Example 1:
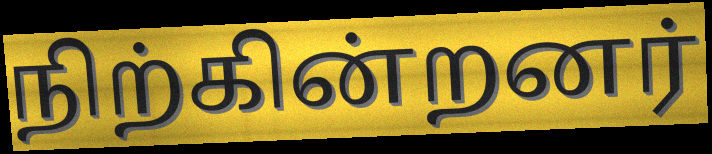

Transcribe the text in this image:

நிற்கின்றனர்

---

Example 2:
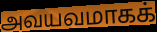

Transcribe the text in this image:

அவயவமாகக்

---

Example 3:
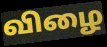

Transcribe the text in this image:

விழை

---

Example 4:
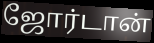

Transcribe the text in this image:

ஜோர்டான்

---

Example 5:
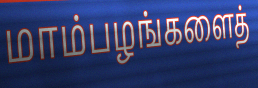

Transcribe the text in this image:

மாம்பழங்களைத்